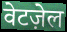
वेटज़ेल